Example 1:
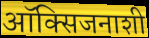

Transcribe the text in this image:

ऑक्सिजनाशी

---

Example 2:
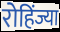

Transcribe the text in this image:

रोहिंज्या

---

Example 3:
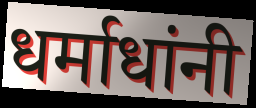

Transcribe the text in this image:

धर्माधांनी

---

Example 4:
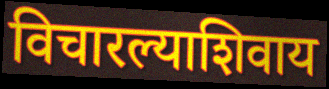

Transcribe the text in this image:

विचारल्याशिवाय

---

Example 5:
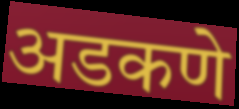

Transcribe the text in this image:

अडकणे